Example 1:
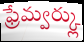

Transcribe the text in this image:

ఫ్రేమ్వర్క్లు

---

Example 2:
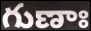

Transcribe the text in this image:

గుణాః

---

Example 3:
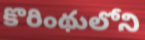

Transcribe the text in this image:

కొరింథులోని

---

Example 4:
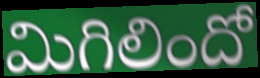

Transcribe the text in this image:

మిగిలిందో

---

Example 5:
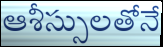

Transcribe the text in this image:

ఆశీస్సులతోనే